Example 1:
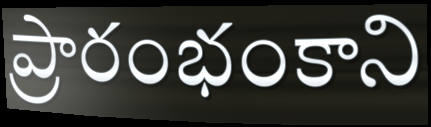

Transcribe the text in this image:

ప్రారంభంకాని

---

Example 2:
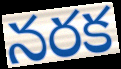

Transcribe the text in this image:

నరక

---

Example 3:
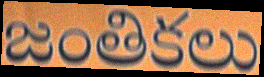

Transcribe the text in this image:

జంతికలు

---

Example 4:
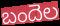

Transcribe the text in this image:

బందెల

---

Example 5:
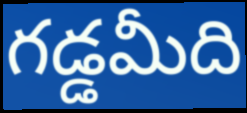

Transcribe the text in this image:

గడ్డమీది